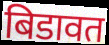
बिडावत